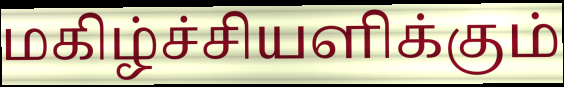
மகிழ்ச்சியளிக்கும்